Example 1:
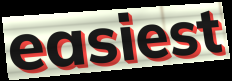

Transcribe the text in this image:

easiest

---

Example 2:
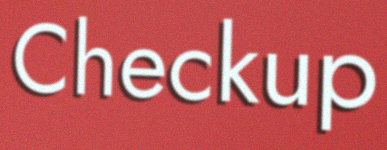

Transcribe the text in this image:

Checkup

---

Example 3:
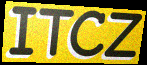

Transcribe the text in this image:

ITCZ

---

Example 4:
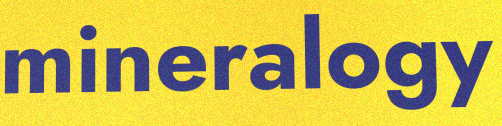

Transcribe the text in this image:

mineralogy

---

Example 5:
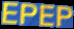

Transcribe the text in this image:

EPEP